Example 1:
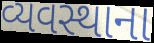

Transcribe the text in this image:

વ્યવસ્થાના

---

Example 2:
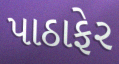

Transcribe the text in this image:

પાઠાફેર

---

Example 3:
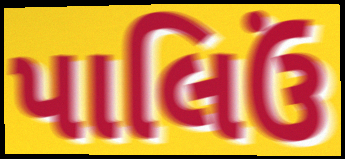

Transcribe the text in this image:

પાલિઉં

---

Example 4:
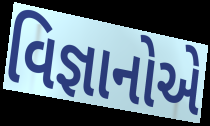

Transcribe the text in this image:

વિજ્ઞાનોએ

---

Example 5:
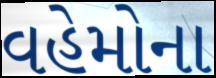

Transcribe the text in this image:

વહેમોના